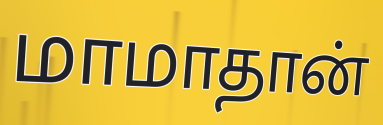
மாமாதான்